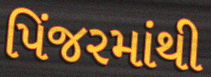
પિંજરમાંથી